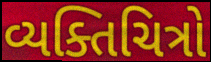
વ્યક્તિચિત્રો